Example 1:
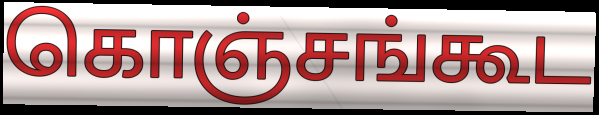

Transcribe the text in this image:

கொஞ்சங்கூட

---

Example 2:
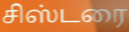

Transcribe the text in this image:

சிஸ்டரை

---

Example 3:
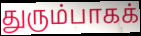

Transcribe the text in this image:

துரும்பாகக்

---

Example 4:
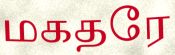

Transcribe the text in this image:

மகதரே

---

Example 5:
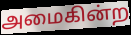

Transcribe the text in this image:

அமைகின்ற